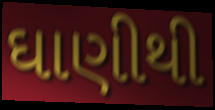
ઘાણીથી